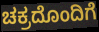
ಚಕ್ರದೊಂದಿಗೆ